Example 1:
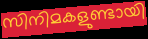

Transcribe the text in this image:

സിനിമകളുണ്ടായി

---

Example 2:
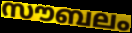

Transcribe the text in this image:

സൗബലം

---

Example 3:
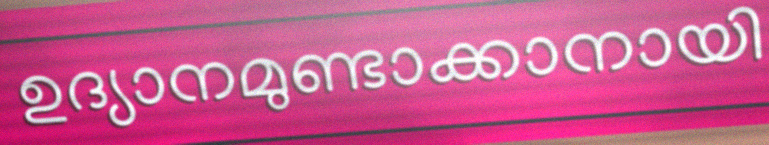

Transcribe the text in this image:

ഉദ്യാനമുണ്ടാക്കാനായി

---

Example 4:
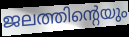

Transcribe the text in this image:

ജലത്തിന്റെയും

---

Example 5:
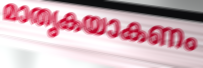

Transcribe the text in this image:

മാതൃകയാകണം